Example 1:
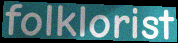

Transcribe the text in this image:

folklorist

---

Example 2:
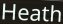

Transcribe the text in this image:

Heath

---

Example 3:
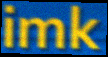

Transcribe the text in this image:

imk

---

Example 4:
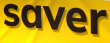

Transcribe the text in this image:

saver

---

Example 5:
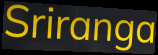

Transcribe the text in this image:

Sriranga